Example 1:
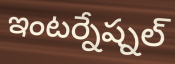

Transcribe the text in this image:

ఇంటర్నేష్నల్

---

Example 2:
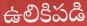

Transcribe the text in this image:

ఉలికిపడి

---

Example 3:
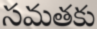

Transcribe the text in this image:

సమతకు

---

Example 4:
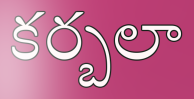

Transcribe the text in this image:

కర్బలా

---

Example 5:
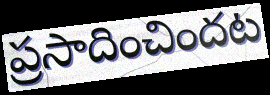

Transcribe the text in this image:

ప్రసాదించిందట